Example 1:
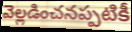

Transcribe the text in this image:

వెల్లడించనప్పటికీ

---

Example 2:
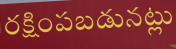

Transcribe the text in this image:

రక్షింపబడునట్లు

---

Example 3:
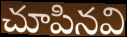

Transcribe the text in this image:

చూపినవి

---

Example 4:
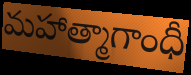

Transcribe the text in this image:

మహాత్మాగాంధీ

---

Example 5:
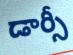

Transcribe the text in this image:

డార్సీ